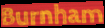
Burnham